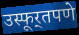
उस्फूर्तपणे